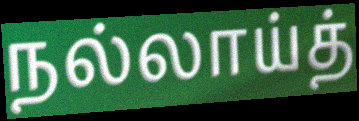
நல்லாய்த்